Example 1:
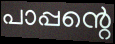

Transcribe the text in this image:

പാപ്പന്റെ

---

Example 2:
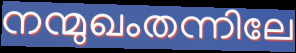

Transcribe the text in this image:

നന്മുഖംതന്നിലേ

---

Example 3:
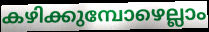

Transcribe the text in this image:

കഴിക്കുമ്പോഴെല്ലാം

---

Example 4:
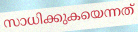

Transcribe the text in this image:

സാധിക്കുകയെന്നത്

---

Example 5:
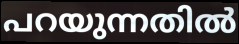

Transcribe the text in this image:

പറയുന്നതിൽ